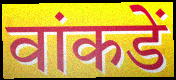
वांकडें